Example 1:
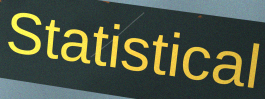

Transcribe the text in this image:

Statistical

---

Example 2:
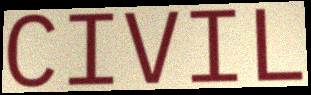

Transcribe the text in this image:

CIVIL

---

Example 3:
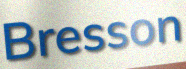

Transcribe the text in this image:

Bresson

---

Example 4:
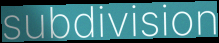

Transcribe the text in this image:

subdivision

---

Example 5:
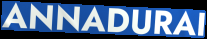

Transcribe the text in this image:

ANNADURAI